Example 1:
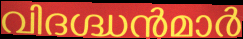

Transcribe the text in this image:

വിദഗ്ദ്ധൻമാർ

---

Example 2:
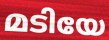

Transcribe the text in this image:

മടിയേ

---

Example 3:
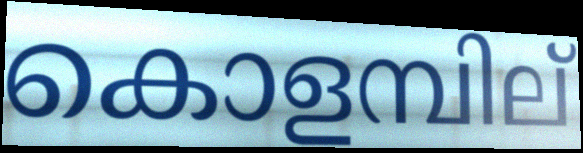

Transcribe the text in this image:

കൊളമ്പില്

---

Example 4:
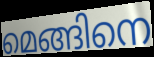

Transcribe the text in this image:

മെങ്ങിനെ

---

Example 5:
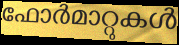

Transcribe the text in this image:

ഫോർമാറ്റുകൾ